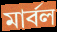
মাৰ্বল